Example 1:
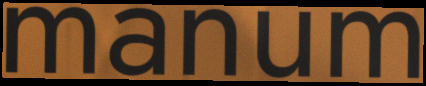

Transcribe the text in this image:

manum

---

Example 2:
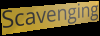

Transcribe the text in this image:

Scavenging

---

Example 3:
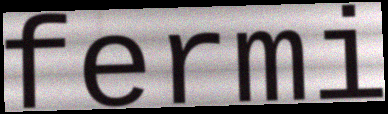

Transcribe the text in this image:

fermi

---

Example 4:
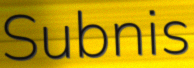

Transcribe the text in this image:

Subnis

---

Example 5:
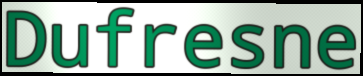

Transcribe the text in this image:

Dufresne